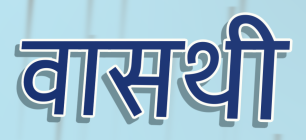
वासथी